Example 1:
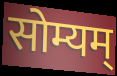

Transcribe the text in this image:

सोम्यम्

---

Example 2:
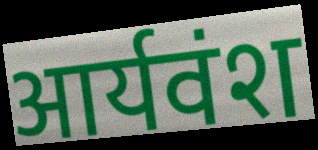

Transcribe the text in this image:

आर्यवंश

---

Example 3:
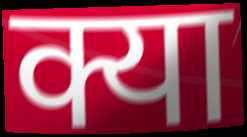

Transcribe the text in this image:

क्या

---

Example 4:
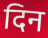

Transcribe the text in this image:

दिन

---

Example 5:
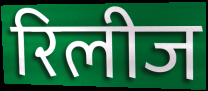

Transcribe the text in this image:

रिलीज